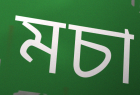
মচা